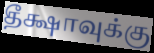
தீக்ஷாவுக்கு